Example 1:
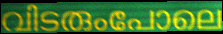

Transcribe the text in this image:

വിടരുംപോലെ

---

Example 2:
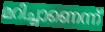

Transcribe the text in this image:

മറിച്ചാണെന്ന്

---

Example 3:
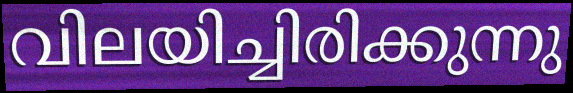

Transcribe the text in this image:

വിലയിച്ചിരിക്കുന്നു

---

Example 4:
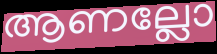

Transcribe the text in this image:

ആണല്ലോ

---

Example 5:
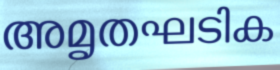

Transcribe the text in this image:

അമൃതഘടിക